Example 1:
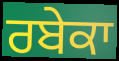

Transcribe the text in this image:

ਰਬੇਕਾ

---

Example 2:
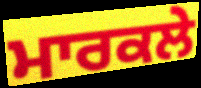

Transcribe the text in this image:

ਮਾਰਕਲੇ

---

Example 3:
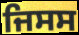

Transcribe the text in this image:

ਜਿਸਸ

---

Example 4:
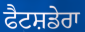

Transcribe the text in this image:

ਫੈਟਸ਼ਡੇਰਾ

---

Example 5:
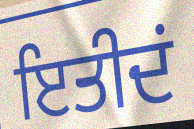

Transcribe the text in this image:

ਇਤੀਦਂ